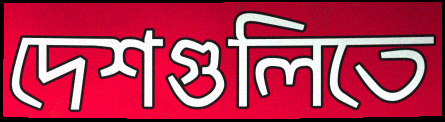
দেশগুলিতে